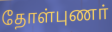
தோள்புணர்